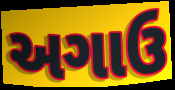
અગાઉ